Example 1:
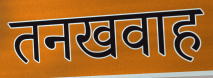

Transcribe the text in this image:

तनखवाह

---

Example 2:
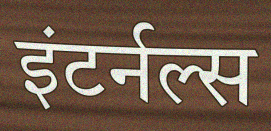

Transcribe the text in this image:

इंटर्नल्स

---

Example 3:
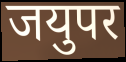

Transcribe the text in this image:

जयुपर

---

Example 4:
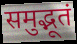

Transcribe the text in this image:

समुद्भूतं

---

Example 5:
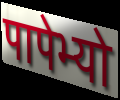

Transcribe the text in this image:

पापेभ्यो